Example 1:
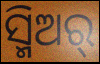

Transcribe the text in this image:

ସ୍ମିଅର୍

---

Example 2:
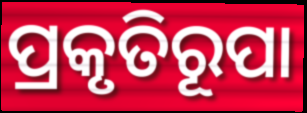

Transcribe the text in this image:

ପ୍ରକୃତିରୂପା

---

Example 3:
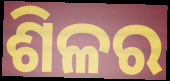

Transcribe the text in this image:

ଶିଳର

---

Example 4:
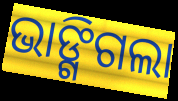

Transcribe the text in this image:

ଭାଙ୍ଗିଗଲା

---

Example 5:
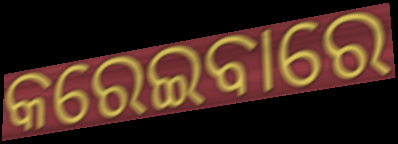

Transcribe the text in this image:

କରେଇବାରେ